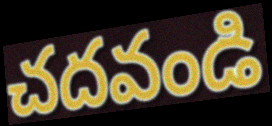
చదవండి